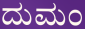
ದುಮಂ